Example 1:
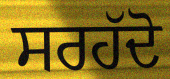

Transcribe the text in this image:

ਸਰਹੱਦੋ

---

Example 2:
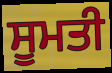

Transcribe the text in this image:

ਸੂਮਤੀ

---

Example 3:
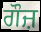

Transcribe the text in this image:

ਗੌਜ਼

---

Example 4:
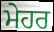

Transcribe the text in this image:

ਮੇਹਰ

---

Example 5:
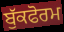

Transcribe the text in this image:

ਬੁੱਕਫੋਰਮ